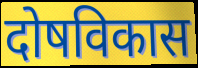
दोषविकास